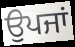
ਉਪਜਾਂ